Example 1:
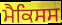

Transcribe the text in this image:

ਮੈਕਿਸਸ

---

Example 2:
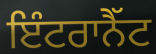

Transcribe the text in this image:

ਇੰਟਰਾਨੈੱਟ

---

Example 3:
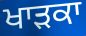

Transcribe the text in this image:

ਖਾੜਕਾ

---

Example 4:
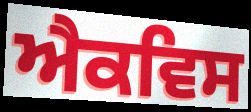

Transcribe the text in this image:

ਐਕਵਿਸ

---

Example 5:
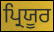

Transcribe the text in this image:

ਪ੍ਰਿਯੂਰ